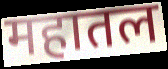
महातल